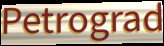
Petrograd